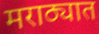
मराठ्यात